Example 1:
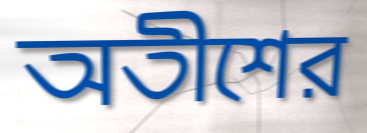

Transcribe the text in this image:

অতীশের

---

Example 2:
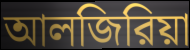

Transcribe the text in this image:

আলজিরিয়া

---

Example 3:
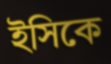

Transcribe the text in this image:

ইসিকে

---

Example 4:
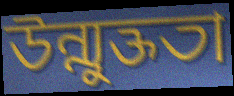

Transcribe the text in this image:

উন্মুক্ততা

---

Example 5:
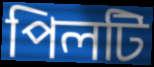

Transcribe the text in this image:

পিলটি